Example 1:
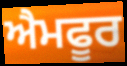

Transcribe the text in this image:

ਐਮਫੂਰ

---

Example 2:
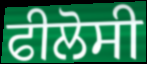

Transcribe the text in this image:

ਫੀਲੋਸੀ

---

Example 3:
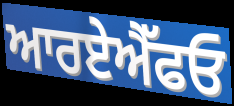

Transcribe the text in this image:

ਆਰਏਐੱਫਓ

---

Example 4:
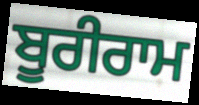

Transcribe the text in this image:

ਬੂਰੀਰਾਮ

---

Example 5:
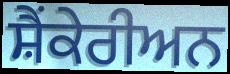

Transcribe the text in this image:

ਸ਼ੈਂਕੇਰੀਅਨ